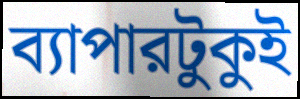
ব্যাপারটুকুই